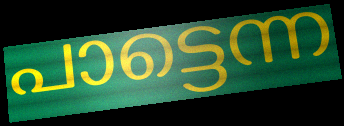
പാട്ടെന്ന